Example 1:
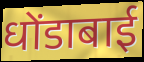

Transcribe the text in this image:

धोंडाबाई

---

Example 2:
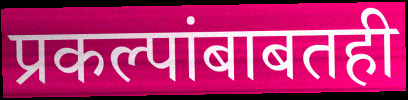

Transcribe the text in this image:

प्रकल्पांबाबतही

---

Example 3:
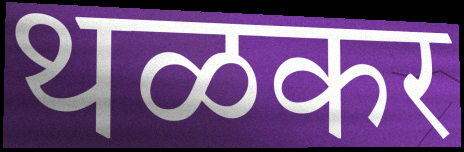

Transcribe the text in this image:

थळकर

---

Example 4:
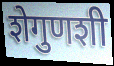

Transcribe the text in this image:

शेगुणशी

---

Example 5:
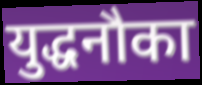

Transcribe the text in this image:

युद्धनौका